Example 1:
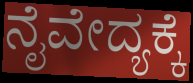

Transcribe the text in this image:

ನೈವೇದ್ಯಕ್ಕೆ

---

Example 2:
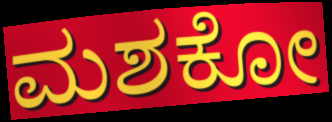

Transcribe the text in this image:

ಮಶಕೋ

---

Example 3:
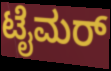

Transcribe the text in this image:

ಟೈಮರ್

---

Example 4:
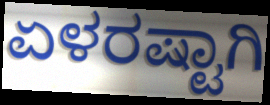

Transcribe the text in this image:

ಏಳರಷ್ಟಾಗಿ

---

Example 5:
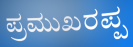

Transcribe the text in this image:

ಪ್ರಮುಖರಪ್ಪ